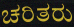
ಚರಿತರು